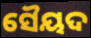
ସୈୟଦ